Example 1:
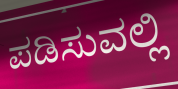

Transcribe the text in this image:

ಪಡಿಸುವಲ್ಲಿ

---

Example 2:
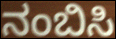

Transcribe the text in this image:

ನಂಬಿಸಿ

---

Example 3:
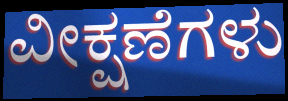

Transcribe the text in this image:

ವೀಕ್ಷಣೆಗಳು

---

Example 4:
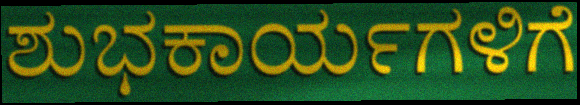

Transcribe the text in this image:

ಶುಭಕಾರ್ಯಗಳಿಗೆ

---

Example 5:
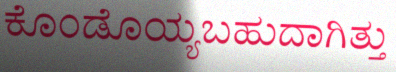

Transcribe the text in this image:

ಕೊಂಡೊಯ್ಯಬಹುದಾಗಿತ್ತು